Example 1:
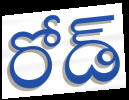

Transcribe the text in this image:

రోడ్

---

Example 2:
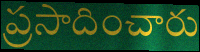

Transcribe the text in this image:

ప్రసాదించారు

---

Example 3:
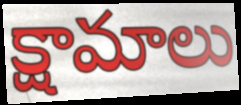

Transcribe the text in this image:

క్షామాలు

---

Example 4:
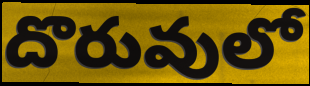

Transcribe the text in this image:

దొరువులో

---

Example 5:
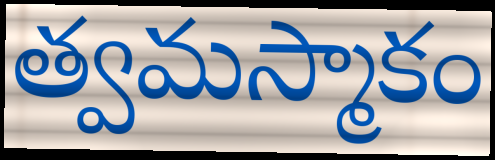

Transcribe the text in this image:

త్వమస్మాకం